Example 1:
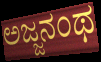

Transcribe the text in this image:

ಅಜ್ಜನಂಥ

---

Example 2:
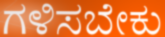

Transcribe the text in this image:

ಗಳಿಸಬೇಕು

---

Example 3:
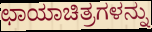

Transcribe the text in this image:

ಛಾಯಾಚಿತ್ರಗಳನ್ನು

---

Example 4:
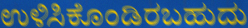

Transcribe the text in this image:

ಉಳಿಸಿಕೊಂಡಿರಬಹುದು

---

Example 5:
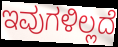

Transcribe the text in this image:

ಇವುಗಳಿಲ್ಲದೆ